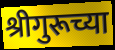
श्रीगुरूच्या